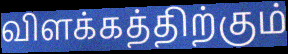
விளக்கத்திற்கும்